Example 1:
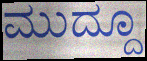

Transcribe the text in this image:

ಮುದ್ದೂ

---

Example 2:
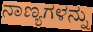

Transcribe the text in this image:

ನಾಣ್ಯಗಳನ್ನು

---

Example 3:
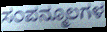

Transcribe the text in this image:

ಸಂಪನ್ಮೂಲಗಳ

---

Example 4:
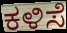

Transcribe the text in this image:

ಕಳಿಸೆ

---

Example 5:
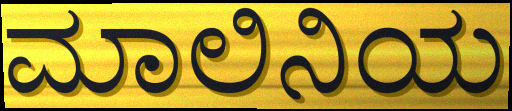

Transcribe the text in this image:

ಮಾಲಿನಿಯ